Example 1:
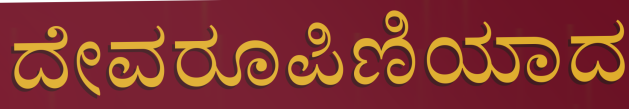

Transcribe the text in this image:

ದೇವರೂಪಿಣಿಯಾದ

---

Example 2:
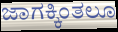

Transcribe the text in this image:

ಜಾಗಕ್ಕಿಂತಲೂ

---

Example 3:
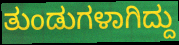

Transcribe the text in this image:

ತುಂಡುಗಳಾಗಿದ್ದು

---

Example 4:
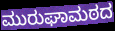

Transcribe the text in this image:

ಮುರುಘಾಮಠದ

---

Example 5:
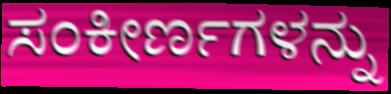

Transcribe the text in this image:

ಸಂಕೀರ್ಣಗಳನ್ನು